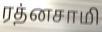
ரத்னசாமி